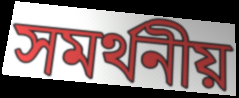
সমর্থনীয়